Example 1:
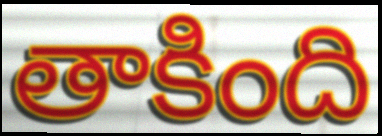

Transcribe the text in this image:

తాకింది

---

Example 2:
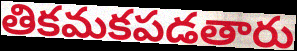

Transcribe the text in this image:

తికమకపడతారు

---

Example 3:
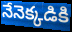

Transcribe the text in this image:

నేనెక్కడికి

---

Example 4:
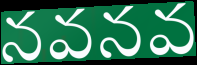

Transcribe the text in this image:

నవనవ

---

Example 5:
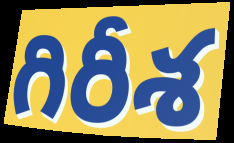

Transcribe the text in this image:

గిరీశ